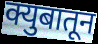
क्युबातून